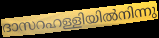
ദാസറഹള്ളിയിൽനിന്നു